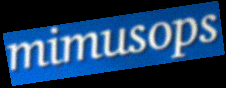
mimusops